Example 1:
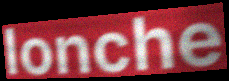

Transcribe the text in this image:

lonche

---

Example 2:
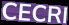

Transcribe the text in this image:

CECRI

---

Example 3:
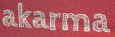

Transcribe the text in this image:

akarma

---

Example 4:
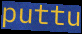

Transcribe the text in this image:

puttu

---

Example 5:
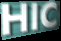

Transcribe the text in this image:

HIC